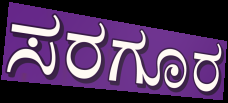
ಸರಗೂರ